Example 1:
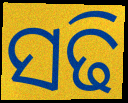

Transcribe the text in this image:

ସଢି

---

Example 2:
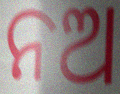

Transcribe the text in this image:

ନଅ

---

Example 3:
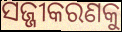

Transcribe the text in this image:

ସଜ୍ଜୀକରଣକୁ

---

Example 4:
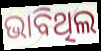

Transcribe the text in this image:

ଭାବିଥିଲ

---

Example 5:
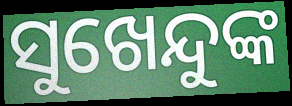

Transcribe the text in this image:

ସୁଖେନ୍ଦୁଙ୍କ